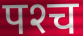
पश्च